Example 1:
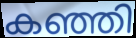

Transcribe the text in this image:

കഞ്ഞി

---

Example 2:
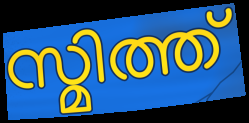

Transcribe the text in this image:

സ്മിത്ത്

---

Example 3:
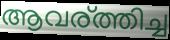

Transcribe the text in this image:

ആവര്ത്തിച്ച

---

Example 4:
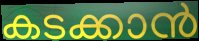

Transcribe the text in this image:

കടക്കാൻ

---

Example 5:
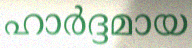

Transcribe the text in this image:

ഹാർദ്ദമായ